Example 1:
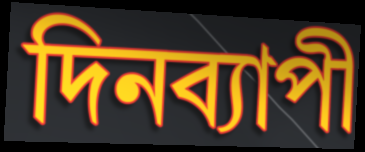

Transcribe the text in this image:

দিনব্যাপী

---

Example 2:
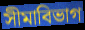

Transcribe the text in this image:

সীমাবিভাগ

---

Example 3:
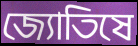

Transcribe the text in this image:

জ্যোতিষে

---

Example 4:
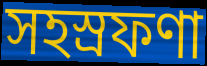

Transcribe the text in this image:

সহস্রফণা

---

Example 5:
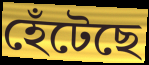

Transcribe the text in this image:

হেঁটেছে